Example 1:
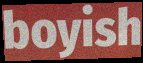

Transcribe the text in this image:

boyish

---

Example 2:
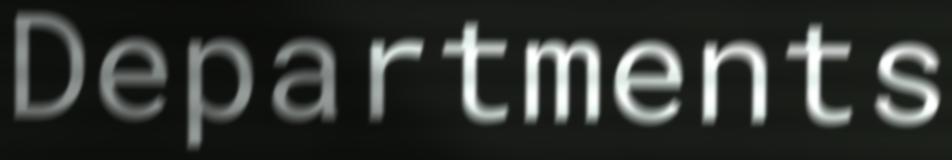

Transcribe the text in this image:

Departments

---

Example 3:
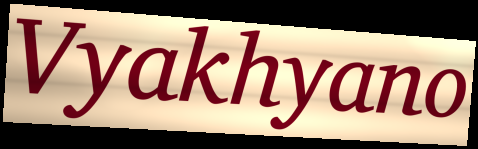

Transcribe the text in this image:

Vyakhyano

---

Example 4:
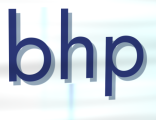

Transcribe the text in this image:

bhp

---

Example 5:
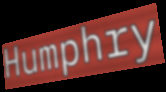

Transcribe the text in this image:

Humphry